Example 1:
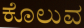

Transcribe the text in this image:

ಕೊಲುವ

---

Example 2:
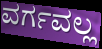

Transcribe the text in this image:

ವರ್ಗವಲ್ಲ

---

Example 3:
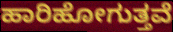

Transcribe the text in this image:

ಹಾರಿಹೋಗುತ್ತವೆ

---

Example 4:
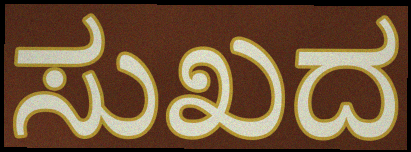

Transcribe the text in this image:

ಸುಖದ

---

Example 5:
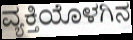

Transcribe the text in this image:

ವ್ಯಕ್ತಿಯೊಳಗಿನ